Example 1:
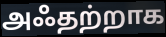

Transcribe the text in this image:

அஃதற்றாக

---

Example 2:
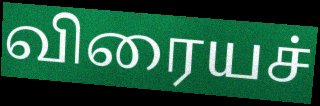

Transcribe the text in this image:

விரையச்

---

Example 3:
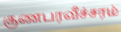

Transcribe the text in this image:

குணபரவீச்சரம்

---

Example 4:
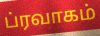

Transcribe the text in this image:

ப்ரவாகம்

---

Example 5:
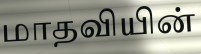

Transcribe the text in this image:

மாதவியின்